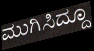
ಮುಗಿಸಿದ್ದೂ